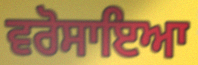
ਵਰੋਸਾਇਆ